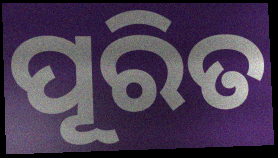
ପୂରିତ